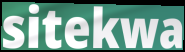
sitekwa